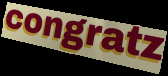
congratz